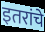
इतरांचे